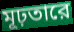
মূঢ়তারে